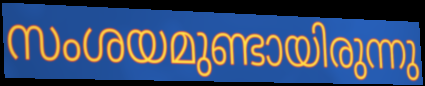
സംശയമുണ്ടായിരുന്നു